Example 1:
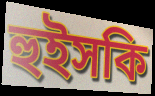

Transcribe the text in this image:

হুইসকি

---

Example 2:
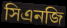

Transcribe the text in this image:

সিএনজি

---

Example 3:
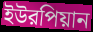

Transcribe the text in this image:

ইউরপিয়ান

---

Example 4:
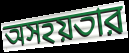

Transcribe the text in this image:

অসহয়তার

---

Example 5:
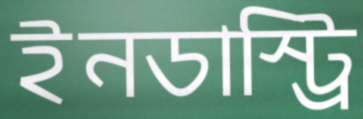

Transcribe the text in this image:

ইনডাস্ট্রি